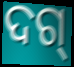
ଦଗ୍